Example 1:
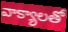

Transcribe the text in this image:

వాక్యాలతో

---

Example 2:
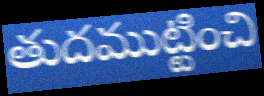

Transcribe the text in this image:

తుదముట్టించి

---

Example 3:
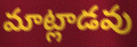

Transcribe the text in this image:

మాట్లాడవు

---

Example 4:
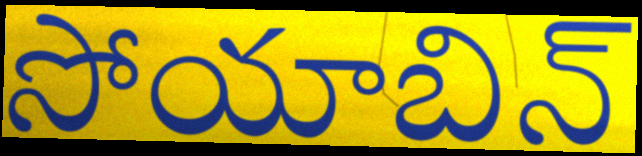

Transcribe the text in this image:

సోయాబిన్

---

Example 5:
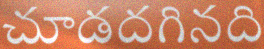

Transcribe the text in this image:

చూడదగినది